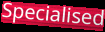
Specialised